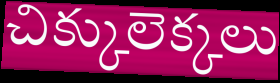
చిక్కులెక్కలు